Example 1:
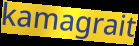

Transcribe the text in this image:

kamagrait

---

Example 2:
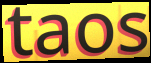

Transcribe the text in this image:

taos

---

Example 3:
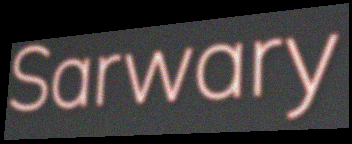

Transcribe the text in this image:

Sarwary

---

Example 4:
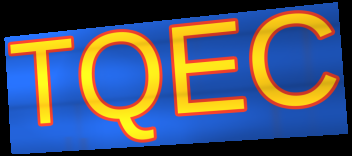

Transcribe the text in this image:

TQEC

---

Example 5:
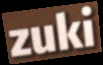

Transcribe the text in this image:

zuki